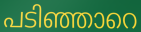
പടിഞ്ഞാറെ